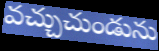
వచ్చుచుండును